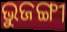
ଭୁଜଙ୍ଗୀ